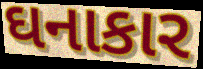
ઘનાકાર